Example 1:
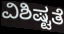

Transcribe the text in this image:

ವಿಶಿಷ್ಟತೆ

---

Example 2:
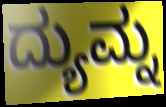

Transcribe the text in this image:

ದ್ಯುಮ್ನ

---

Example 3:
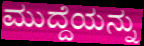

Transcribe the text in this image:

ಮುದ್ದೆಯನ್ನು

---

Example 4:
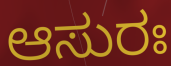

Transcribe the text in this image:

ಆಸುರಃ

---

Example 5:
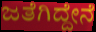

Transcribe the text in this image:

ಜತೆಗಿದ್ದೇನೆ